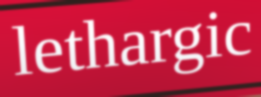
lethargic